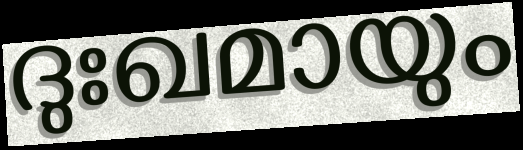
ദുഃഖമായും